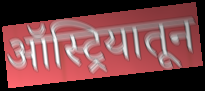
ऑस्ट्रियातून